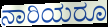
ನಾರಿಯರೂ